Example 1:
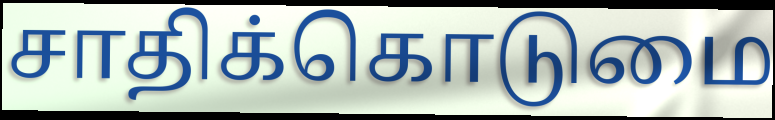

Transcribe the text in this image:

சாதிக்கொடுமை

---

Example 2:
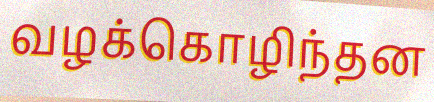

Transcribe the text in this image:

வழக்கொழிந்தன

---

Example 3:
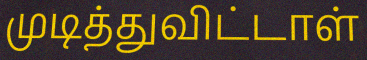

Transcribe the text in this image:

முடித்துவிட்டாள்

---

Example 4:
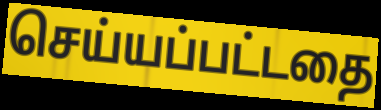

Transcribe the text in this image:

செய்யப்பட்டதை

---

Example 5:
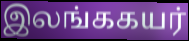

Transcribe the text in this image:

இலங்ககயர்